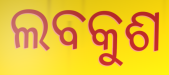
ଲବକୁଶ